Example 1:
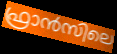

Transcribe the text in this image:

ഫ്രാൻസിലെ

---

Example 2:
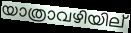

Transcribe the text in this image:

യാത്രാവഴിയില്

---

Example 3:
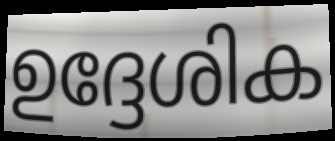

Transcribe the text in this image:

ഉദ്ദേശിക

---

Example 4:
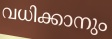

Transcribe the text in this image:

വധിക്കാനും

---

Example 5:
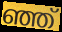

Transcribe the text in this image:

ഞ്ഞ്